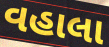
વહાલા